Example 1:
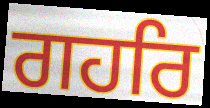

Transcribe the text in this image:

ਗਹਰਿ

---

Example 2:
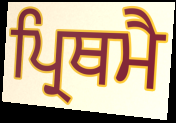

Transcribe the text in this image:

ਪ੍ਰਿਥਮੈ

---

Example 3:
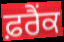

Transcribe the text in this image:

ਫ਼ਰੈਂਕ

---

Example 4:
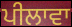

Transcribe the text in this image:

ਪੀਲਾਵਾ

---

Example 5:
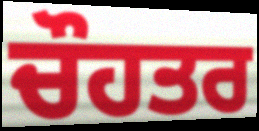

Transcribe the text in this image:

ਚੌਹਤਰ